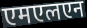
एमएलएन